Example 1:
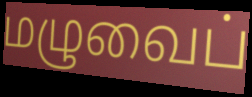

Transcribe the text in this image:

மழுவைப்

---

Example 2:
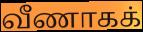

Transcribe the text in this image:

வீணாகக்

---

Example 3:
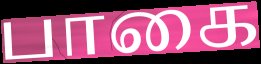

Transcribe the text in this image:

பாகை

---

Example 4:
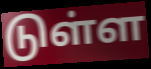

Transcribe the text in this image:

டுள்ள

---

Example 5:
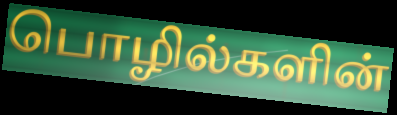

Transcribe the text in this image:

பொழில்களின்